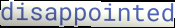
disappointed